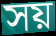
সয়